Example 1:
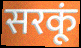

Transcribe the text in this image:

सरकूं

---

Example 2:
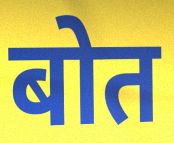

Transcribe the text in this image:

बोत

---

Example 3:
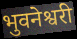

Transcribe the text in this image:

भुवनेश्वरी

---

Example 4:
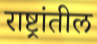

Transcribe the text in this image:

राष्ट्रांतील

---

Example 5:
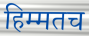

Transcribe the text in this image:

हिम्मतच